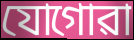
যোগোৱা